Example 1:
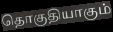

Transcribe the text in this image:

தொகுதியாகும்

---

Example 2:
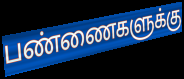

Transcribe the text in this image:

பண்ணைகளுக்கு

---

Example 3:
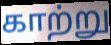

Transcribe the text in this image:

காற்று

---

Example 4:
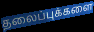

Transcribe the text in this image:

தலைப்புக்களை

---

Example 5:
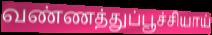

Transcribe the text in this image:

வண்ணத்துப்பூச்சியாய்